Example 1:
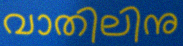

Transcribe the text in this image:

വാതിലിനു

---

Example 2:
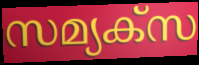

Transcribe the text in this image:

സമ്യക്സ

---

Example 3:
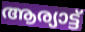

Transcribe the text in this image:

ആര്യാട്ട്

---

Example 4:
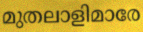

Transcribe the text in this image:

മുതലാളിമാരേ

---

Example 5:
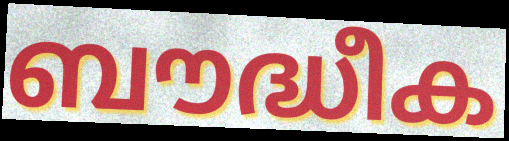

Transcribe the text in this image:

ബൗദ്ധീക